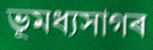
ভূমধ্যসাগৰ